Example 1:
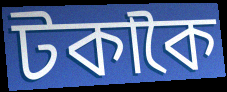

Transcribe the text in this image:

টকাকৈ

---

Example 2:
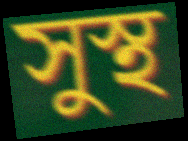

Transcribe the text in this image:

সুস্থ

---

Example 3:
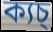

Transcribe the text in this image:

ক্যচ্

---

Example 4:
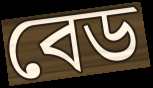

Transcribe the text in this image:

বেড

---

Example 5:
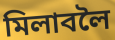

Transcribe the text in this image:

মিলাবলৈ